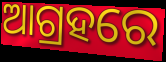
ଆଗ୍ରହରେ